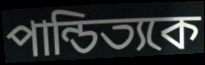
পান্ডিত্যকে